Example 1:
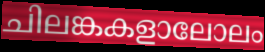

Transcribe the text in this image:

ചിലങ്കകളാലോലം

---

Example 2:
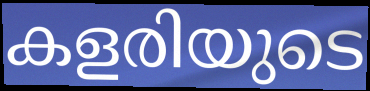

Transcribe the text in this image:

കളരിയുടെ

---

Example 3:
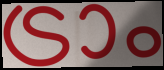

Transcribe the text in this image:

ട്രാം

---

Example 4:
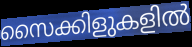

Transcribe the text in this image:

സൈക്കിളുകളിൽ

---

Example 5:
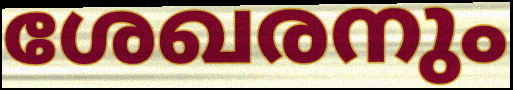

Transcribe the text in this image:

ശേഖരനും